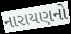
નારાયણનો